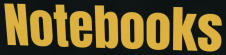
Notebooks